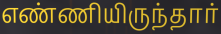
எண்ணியிருந்தார்